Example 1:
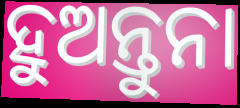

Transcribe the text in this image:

ହୁଅନ୍ତୁନା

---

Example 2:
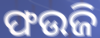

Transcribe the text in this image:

ଫଉଜି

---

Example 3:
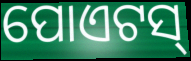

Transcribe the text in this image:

ପୋଏଟସ୍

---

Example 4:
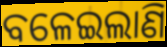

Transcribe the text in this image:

ବଳେଇଲାଣି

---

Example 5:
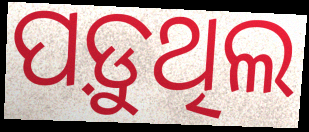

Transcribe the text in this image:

ପଡ଼ୁଥିଲ